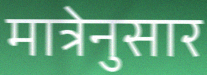
मात्रेनुसार